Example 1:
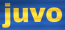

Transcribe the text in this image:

juvo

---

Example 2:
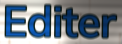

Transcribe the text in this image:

Editer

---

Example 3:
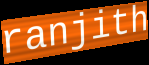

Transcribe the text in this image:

ranjith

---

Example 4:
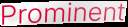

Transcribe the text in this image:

Prominent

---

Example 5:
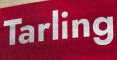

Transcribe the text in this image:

Tarling